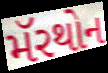
મૅરથોન